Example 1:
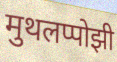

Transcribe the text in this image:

मुथलप्पोझी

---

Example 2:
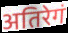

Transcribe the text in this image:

अतिरेगं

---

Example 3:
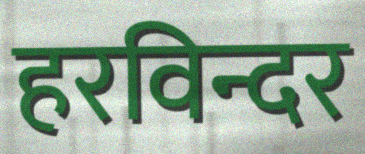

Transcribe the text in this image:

हरविन्दर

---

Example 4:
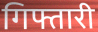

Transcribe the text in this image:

गिफ्तारी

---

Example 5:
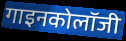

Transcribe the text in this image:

गाइनकोलॉजी